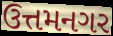
ઉત્તમનગર